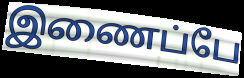
இணைப்பே